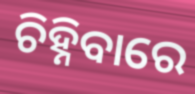
ଚିହ୍ନିବାରେ